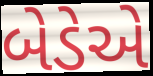
બેડેએ